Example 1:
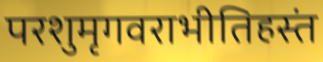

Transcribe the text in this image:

परशुमृगवराभीतिहस्तं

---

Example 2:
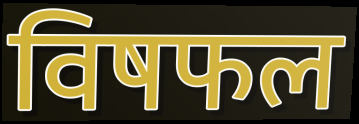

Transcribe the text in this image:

विषफल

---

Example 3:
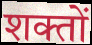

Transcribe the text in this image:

शक्तों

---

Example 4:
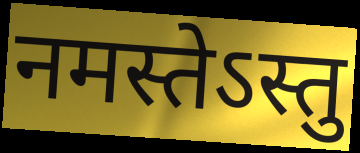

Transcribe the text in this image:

नमस्तेऽस्तु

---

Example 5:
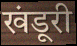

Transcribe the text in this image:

खंडूरी